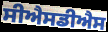
ਸੀਐਸਡੀਐਸ